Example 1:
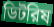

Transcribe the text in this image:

ডিটরিষ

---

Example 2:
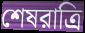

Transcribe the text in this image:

শেষরাত্রি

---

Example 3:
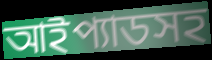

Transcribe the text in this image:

আইপ্যাডসহ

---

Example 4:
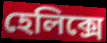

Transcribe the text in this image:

হেলিক্সে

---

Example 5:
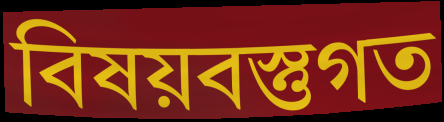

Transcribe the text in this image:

বিষয়বস্তুগত